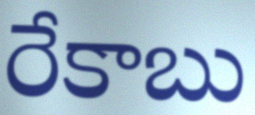
రేకాబు